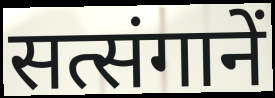
सत्संगानें